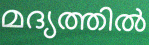
മദ്യത്തിൽ